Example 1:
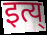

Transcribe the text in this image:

इत्य्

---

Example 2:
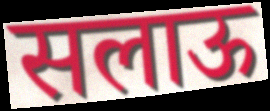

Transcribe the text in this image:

सलाऊ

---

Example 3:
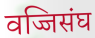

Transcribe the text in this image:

वज्जिसंघ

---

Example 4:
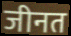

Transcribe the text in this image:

जीनत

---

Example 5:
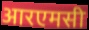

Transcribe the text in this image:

आरएमसी